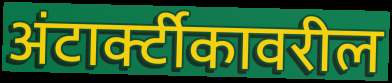
अंटार्क्टीकावरील